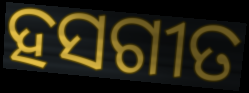
ହସଗୀତ